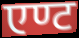
एण्ट